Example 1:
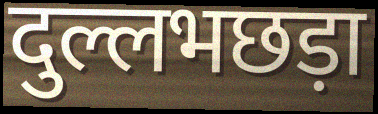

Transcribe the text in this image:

दुल्लभछड़ा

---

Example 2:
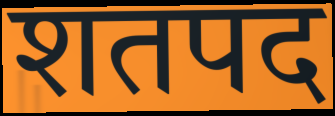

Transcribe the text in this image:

शतपद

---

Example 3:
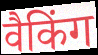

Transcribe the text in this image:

वैकिंग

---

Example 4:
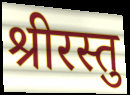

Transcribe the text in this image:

श्रीरस्तु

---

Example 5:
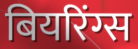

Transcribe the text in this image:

बियरिंग्स